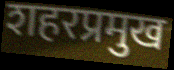
शहरप्रमुख